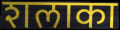
शलाका